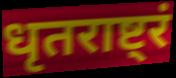
धृतराष्ट्रं